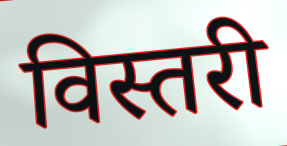
विस्तरी